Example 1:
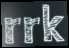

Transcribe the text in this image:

rrk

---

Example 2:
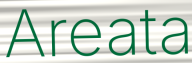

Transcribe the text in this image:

Areata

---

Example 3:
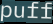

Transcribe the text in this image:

puff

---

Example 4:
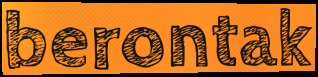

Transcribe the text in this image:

berontak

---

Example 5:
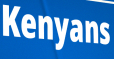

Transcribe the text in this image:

Kenyans